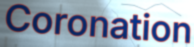
Coronation